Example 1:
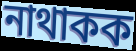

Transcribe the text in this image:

নাথাকক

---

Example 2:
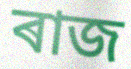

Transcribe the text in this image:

ৰাজ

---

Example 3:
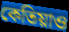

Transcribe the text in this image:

কেতিয়াও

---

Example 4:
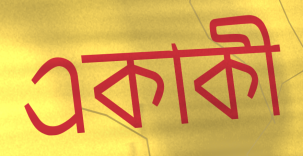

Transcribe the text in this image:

একাকী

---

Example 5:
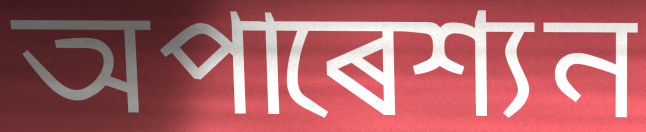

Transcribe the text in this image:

অপাৰেশ্যন